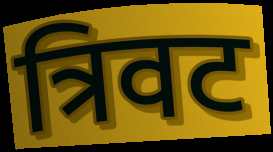
त्रिवट